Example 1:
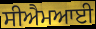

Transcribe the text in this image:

ਸੀਐਮਆਈ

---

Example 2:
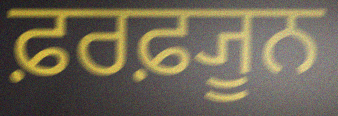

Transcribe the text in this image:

ਫ਼ਰਫ਼੍ਯੂਨ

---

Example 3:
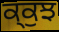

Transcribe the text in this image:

ਕ੍ਕੁਝ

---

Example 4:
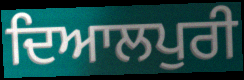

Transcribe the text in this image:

ਦਿਆਲਪੁਰੀ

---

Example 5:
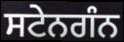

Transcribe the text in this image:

ਸਟੇਨਗੰਨ